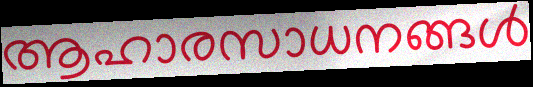
ആഹാരസാധനങ്ങൾ